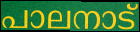
പാലനാട്